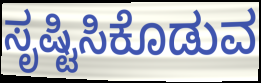
ಸೃಷ್ಟಿಸಿಕೊಡುವ